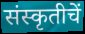
संस्कृतीचें